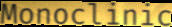
Monoclinic